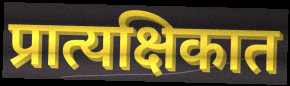
प्रात्यक्षिकात